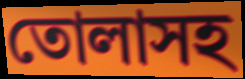
তোলাসহ